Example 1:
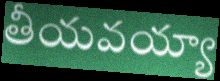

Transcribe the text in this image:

తీయవయ్యా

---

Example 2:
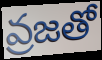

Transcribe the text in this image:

వ్రజతో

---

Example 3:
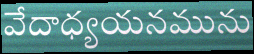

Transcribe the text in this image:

వేదాధ్యయనమును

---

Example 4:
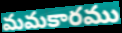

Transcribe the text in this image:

మమకారము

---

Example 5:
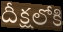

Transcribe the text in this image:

దీక్షలోకి